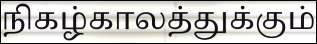
நிகழ்காலத்துக்கும்